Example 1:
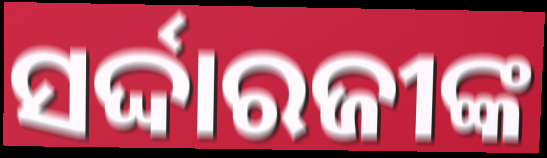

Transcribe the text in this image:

ସର୍ଦ୍ଦାରଜୀଙ୍କ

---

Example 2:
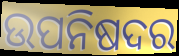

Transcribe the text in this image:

ଉପନିଷଦର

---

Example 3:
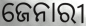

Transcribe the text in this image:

ଜେନାରୀ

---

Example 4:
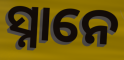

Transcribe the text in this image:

ସ୍ନାନେ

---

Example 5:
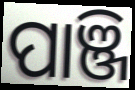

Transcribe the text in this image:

ପାଞ୍ଜି